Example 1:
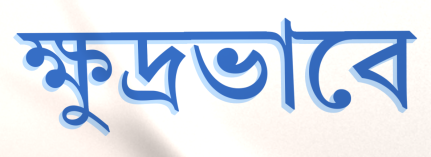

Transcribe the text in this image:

ক্ষুদ্রভাবে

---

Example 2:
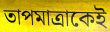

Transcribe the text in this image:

তাপমাত্রাকেই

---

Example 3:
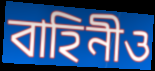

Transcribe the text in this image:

বাহিনীও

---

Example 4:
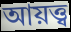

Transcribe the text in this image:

আয়ত্ত্ব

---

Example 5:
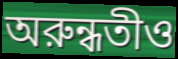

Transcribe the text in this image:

অরুন্ধতীও